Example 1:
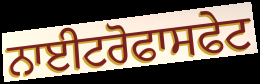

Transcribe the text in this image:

ਨਾਈਟਰੋਫਾਸਫੇਟ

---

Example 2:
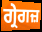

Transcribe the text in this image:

ਗ੍ਰੇਗਜ਼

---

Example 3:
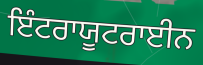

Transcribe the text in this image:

ਇੰਟਰਾਯੂਟਰਾਈਨ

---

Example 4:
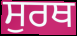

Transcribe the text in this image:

ਸੁਰਥ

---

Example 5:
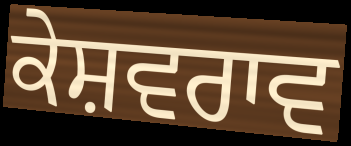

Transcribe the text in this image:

ਕੇਸ਼ਵਰਾਵ